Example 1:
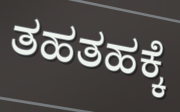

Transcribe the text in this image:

ತಹತಹಕ್ಕೆ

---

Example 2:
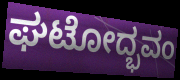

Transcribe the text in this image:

ಘಟೋದ್ಭವಂ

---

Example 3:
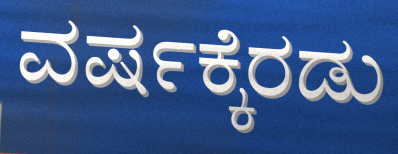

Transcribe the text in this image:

ವರ್ಷಕ್ಕೆರಡು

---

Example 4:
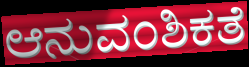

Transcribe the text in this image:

ಆನುವಂಶಿಕತೆ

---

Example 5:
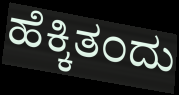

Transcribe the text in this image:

ಹೆಕ್ಕಿತಂದು